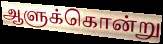
ஆளுக்கொன்று